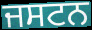
ਜਸਟਨ